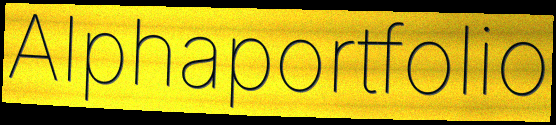
Alphaportfolio